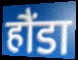
हौंडा